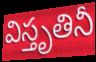
విస్తృతినీ